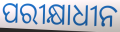
ପରୀକ୍ଷାଧୀନ